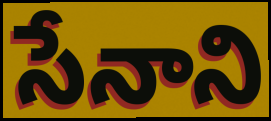
సేనాని